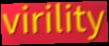
virility